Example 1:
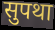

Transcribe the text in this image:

सुपथा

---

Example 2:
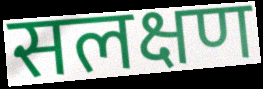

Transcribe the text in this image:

सलक्षण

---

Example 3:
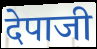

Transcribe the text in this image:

देपाजी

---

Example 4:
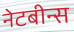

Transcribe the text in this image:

नेटबीन्स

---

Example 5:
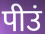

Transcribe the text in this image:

पीउं